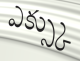
ఎక్స్కు